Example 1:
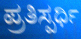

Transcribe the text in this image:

ಪ್ರತಿಸ್ಪರ್ಧಿ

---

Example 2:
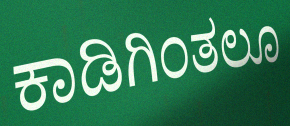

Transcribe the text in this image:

ಕಾಡಿಗಿಂತಲೂ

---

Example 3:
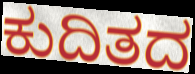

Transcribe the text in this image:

ಕುದಿತದ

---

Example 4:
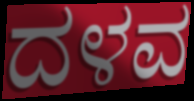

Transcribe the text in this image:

ದಳವ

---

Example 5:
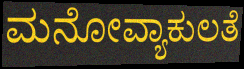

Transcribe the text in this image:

ಮನೋವ್ಯಾಕುಲತೆ